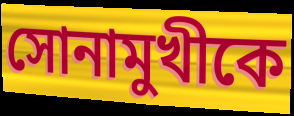
সোনামুখীকে